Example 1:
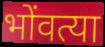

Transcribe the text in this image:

भोंवत्या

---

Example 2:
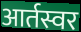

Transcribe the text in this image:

आर्तस्वर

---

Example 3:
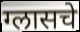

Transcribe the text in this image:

ग्लासचे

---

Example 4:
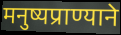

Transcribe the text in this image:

मनुष्यप्राण्याने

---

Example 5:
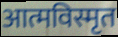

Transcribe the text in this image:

आत्मविस्मृत